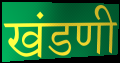
खंडणी